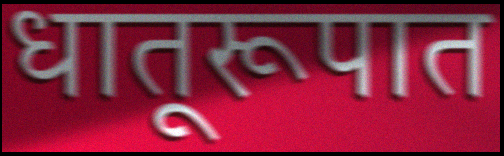
धातूरूपात